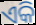
ଏକି